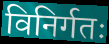
विनिर्गतः